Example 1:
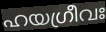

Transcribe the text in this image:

ഹയഗ്രീവഃ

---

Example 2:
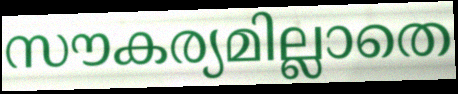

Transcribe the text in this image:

സൗകര്യമില്ലാതെ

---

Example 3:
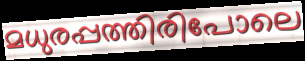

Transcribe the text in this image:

മധുരപ്പത്തിരിപോലെ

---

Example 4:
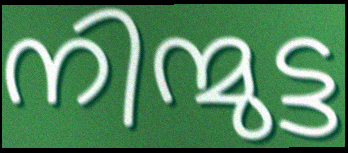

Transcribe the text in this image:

നിന്മുട്ട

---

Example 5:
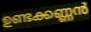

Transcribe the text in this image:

ഉണ്ടക്കണ്ണൻ